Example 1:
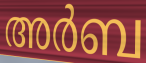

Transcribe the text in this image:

അർബ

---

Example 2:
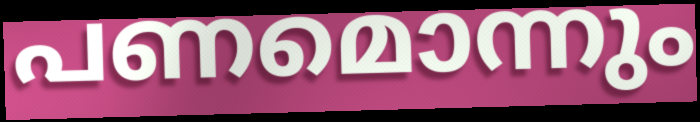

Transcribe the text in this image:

പണമൊന്നും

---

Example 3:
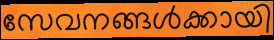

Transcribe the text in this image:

സേവനങ്ങൾക്കായി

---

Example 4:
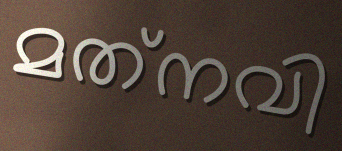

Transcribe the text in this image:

മത്‌നവി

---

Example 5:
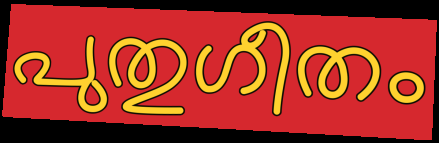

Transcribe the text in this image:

പുതുഗീതം